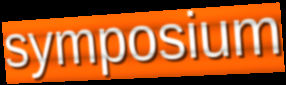
symposium